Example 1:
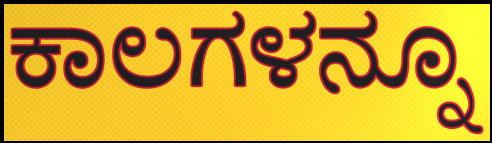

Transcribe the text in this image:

ಕಾಲಗಳನ್ನೂ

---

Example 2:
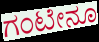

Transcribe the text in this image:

ಗಂಟೇನೂ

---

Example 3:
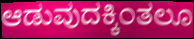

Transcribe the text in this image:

ಆಡುವುದಕ್ಕಿಂತಲೂ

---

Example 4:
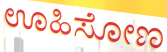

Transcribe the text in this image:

ಊಹಿಸೋಣ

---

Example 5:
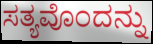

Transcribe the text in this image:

ಸತ್ಯವೊಂದನ್ನು